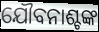
ଯୌବନାଶ୍ଚଙ୍କ